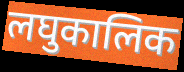
लघुकालिक